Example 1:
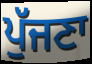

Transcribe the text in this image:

ਪੁੱਜਣਾ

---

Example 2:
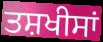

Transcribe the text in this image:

ਤਸ਼ਖੀਸਾਂ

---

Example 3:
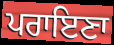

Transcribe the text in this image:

ਪਰਾਇਣਾ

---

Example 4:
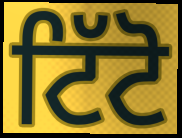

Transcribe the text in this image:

ਟਿੱਟੋ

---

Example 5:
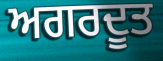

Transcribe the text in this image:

ਅਗਰਦੂਤ